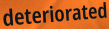
deteriorated